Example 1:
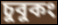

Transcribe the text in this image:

চুবুকং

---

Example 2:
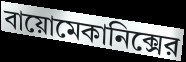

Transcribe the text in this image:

বায়োমেকানিক্সের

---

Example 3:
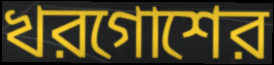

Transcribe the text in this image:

খরগোশের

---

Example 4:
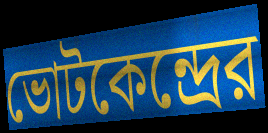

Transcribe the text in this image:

ভোটকেন্দ্রের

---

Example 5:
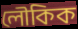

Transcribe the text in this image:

লৌকিক